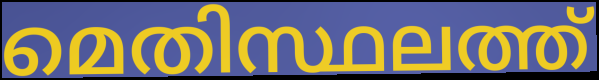
മെതിസ്ഥലത്ത്